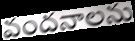
వందనాలను